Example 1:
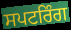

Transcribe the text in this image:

ਸਪਟਰਿੰਗ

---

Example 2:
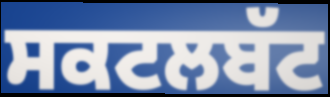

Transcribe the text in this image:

ਸਕਟਲਬੱਟ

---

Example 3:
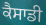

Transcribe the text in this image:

ਕੈਸਾਡੀ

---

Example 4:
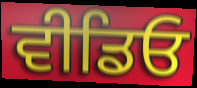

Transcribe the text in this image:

ਵੀਡਿਓ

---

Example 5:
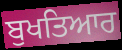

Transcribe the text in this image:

ਬੁਖਤਿਆਰ